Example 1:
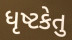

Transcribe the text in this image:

ધૃષ્ટકેતુ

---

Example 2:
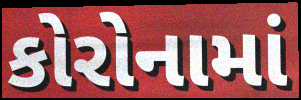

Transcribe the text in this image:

કોરોનામાં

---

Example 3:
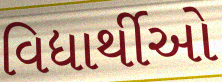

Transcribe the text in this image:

વિદ્યાર્થીઓ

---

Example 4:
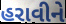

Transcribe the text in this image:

હરાવીને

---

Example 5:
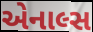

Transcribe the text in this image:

એનાલ્સ